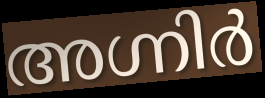
അഗ്നിർ